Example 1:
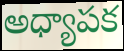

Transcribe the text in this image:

అధ్యాపక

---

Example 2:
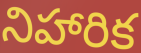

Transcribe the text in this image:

నిహారిక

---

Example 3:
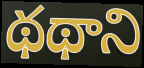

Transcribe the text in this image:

థథాని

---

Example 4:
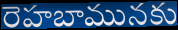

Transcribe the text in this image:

రెహబామునకు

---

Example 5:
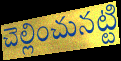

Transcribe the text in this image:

చెల్లించునట్టి